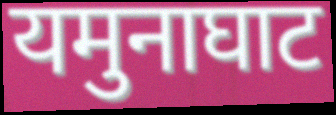
यमुनाघाट